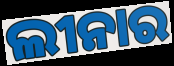
ଲୀନାର